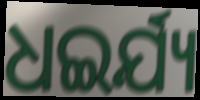
ଧଇର୍ଯ୍ୟ